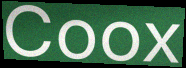
Coox